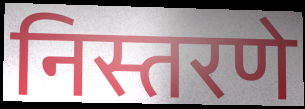
निस्तरणे